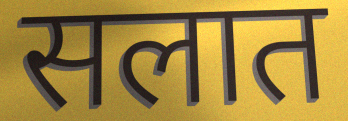
सलात